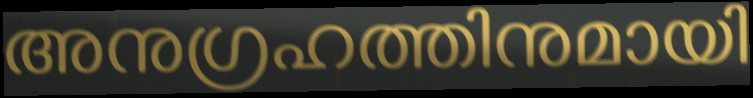
അനുഗ്രഹത്തിനുമായി